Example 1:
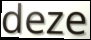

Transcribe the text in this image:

deze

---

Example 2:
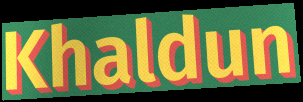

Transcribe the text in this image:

Khaldun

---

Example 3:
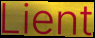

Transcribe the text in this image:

Lient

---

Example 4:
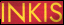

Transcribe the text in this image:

INKIS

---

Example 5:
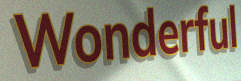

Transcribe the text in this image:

Wonderful